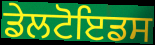
ਡੇਲਟੋਇਡਸ